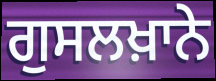
ਗੁਸਲਖ਼ਾਨੇ